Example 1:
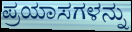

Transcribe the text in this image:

ಪ್ರಯಾಸಗಳನ್ನು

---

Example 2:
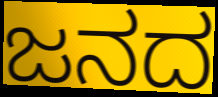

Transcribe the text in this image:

ಜನದ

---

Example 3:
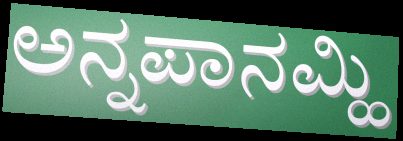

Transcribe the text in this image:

ಅನ್ನಪಾನಮ್ಹಿ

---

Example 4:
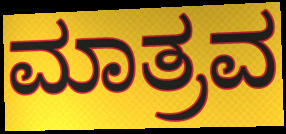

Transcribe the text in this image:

ಮಾತ್ರವ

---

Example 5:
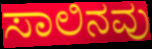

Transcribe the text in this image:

ಸಾಲಿನವು